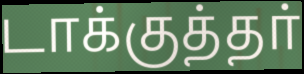
டாக்குத்தர்